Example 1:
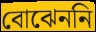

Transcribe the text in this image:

বোঝেননি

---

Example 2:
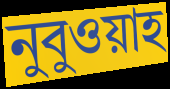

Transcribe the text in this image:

নুবুওয়াহ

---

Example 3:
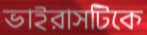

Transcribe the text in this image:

ভাইরাসটিকে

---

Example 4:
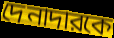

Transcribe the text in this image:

দেনাদারকে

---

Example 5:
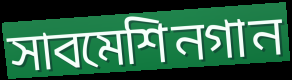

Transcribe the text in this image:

সাবমেশিনগান